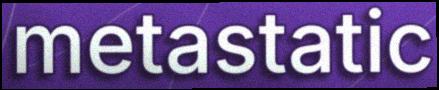
metastatic